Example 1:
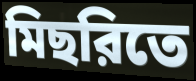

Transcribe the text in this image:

মিছরিতে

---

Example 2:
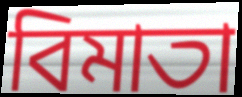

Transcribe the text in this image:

বিমাতা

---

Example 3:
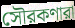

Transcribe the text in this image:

সৌরকণারা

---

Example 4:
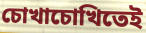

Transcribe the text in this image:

চোখাচোখিতেই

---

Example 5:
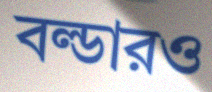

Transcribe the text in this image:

বল্ডারও